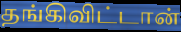
தங்கிவிட்டான்